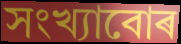
সংখ্যাবোৰ